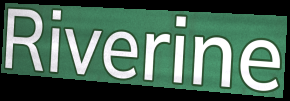
Riverine